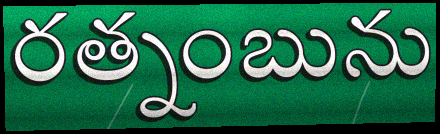
రత్నంబును